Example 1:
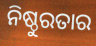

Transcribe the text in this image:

ନିଷ୍ଠୁରତାର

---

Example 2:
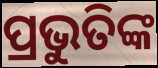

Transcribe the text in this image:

ପ୍ରଭୁତିଙ୍କ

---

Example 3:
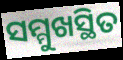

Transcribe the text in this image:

ସମ୍ମୁଖସ୍ଥିତ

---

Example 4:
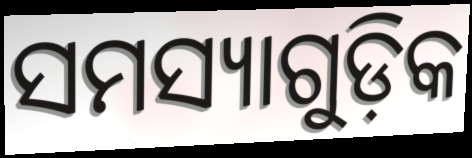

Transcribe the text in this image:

ସମସ୍ୟାଗୁଡ଼ିକ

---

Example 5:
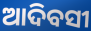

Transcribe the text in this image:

ଆଦିବସୀ